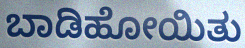
ಬಾಡಿಹೋಯಿತು